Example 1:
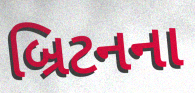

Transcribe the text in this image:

બ્રિટનના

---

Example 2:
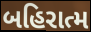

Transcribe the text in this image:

બહિરાત્મ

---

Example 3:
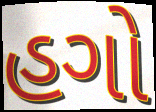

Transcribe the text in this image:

હગો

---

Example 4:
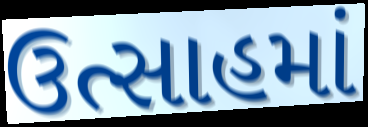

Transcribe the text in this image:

ઉત્સાહમાં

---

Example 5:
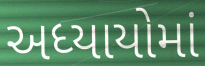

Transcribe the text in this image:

અધ્યાયોમાં